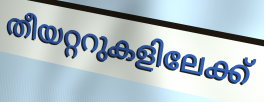
തീയറ്ററുകളിലേക്ക്